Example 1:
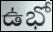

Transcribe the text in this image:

ఉభో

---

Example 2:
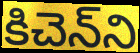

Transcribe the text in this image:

కిచెన్‌ని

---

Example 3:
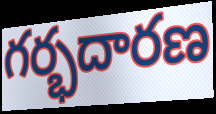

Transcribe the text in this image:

గర్భదారణ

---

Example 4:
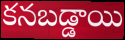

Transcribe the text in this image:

కనబడ్డాయి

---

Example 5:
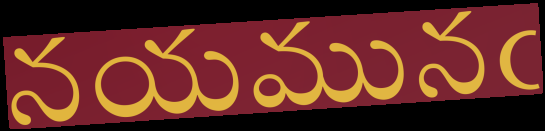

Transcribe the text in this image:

నయమునఁ